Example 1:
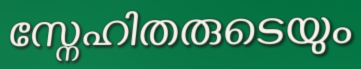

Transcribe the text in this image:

സ്നേഹിതരുടെയും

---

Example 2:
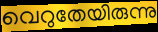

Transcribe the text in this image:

വെറുതേയിരുന്നു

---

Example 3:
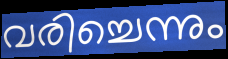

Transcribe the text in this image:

വരിച്ചെന്നും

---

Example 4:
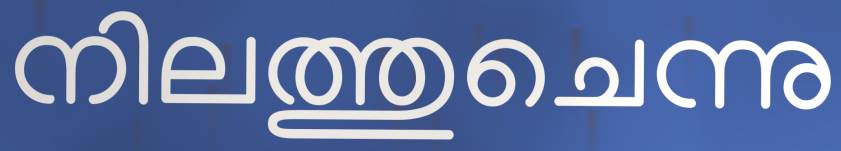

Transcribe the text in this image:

നിലത്തുചെന്നു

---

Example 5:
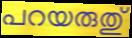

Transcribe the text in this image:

പറയരുതു്